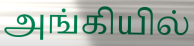
அங்கியில்